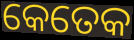
କେତେକ